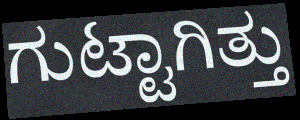
ಗುಟ್ಟಾಗಿತ್ತು